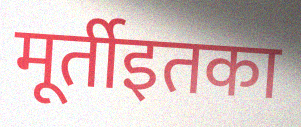
मूर्तीइतका